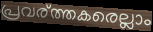
പ്രവര്ത്തകരെല്ലാം